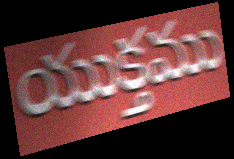
యుక్తము